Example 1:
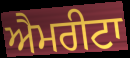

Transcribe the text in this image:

ਐਮਰੀਟਾ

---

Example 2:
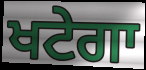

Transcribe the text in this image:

ਖਟੇਗਾ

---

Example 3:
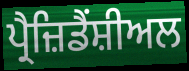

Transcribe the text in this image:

ਪ੍ਰੈਜ਼ਿਡੈਂਸ਼ੀਅਲ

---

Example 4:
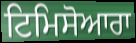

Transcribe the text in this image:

ਟਿਮਿਸੋਆਰਾ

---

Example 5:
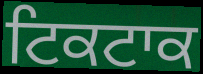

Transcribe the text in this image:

ਟਿਕਟਾਕ